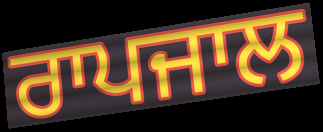
ਰਾਪਜਾਲ